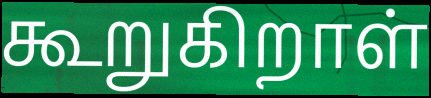
கூறுகிறாள்